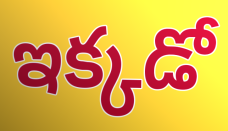
ఇక్కడో